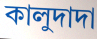
কালুদাদা